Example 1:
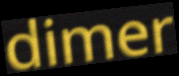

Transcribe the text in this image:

dimer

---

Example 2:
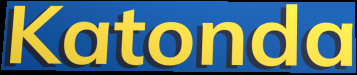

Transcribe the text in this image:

Katonda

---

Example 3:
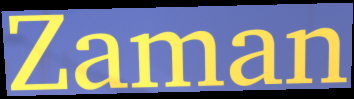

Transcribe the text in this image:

Zaman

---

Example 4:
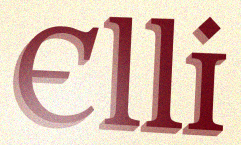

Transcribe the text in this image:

Elli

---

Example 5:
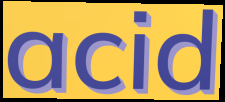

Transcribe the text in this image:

acid